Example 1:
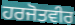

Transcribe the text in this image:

ਹਰਜੋਤਵੀਰ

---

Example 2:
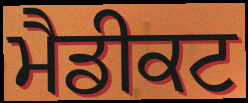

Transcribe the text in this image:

ਮੈਡੀਕਟ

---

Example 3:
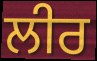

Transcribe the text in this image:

ਲੀਰ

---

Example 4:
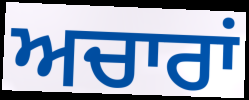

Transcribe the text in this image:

ਅਚਾਰਾਂ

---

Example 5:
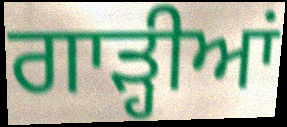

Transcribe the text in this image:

ਗਾੜ੍ਹੀਆਂ